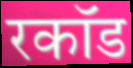
रकॉड